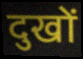
दुखों